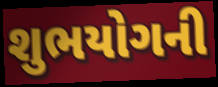
શુભયોગની